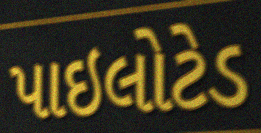
પાઇલોટેડ